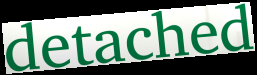
detached